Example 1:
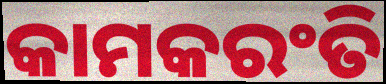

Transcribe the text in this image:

କାମକରଂତି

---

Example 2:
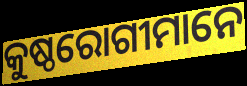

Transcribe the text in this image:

କୁଷ୍ଠରୋଗୀମାନେ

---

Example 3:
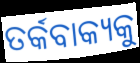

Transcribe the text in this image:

ତର୍କବାକ୍ୟକୁ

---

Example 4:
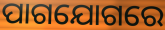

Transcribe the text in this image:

ପାଗଯୋଗରେ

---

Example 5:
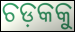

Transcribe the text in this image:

ଚଡ଼କକୁ